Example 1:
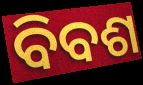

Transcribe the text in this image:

ବିବଶ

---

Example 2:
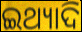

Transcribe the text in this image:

ଇଥ୍ୟାଦି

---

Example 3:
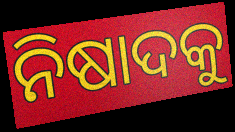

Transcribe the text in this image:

ନିଷାଦକୁ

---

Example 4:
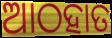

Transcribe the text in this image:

ଆଠହାତ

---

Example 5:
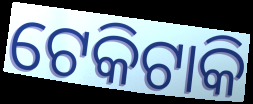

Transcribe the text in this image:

ଟେକିଟାକି